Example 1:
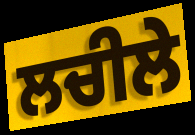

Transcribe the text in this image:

ਲਚੀਲੇ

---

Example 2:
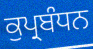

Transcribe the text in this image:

ਕੁਪ੍ਰਬੰਧਨ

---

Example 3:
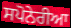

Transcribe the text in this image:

ਸਪੋਨੇਰੀਆ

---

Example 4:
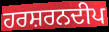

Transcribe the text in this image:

ਹਰਸ਼ਰਨਦੀਪ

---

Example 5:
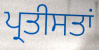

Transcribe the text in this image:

ਪ੍ਰਤੀਸਤਾਂ